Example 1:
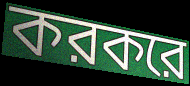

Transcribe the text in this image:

করকরে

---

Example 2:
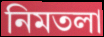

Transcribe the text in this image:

নিমতলা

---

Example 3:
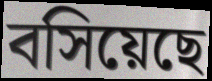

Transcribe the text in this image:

বসিয়েছে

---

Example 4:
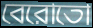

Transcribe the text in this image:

বেরোতো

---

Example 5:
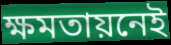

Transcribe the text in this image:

ক্ষমতায়নেই